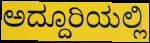
ಅದ್ದೂರಿಯಲ್ಲಿ